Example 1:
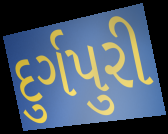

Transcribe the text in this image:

દુર્ગપુરી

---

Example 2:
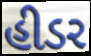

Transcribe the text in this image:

હીડર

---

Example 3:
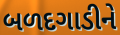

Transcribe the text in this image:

બળદગાડીને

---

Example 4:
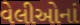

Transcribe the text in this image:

વેલીઓનાં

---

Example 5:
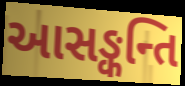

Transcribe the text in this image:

આસઙ્કન્તિ